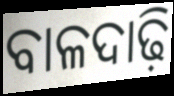
ବାଳଦାଢ଼ି